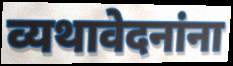
व्यथावेदनांना